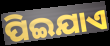
ପିଇଯାଏ